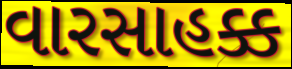
વારસાહક્ક